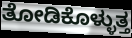
ತೋಡಿಕೊಳ್ಳುತ್ತ